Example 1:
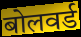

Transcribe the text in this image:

बोलवर्ड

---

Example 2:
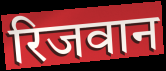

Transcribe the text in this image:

रिजवान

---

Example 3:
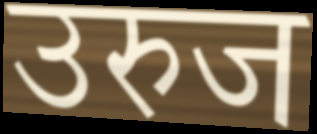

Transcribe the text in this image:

उरुज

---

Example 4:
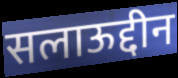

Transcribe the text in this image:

सलाऊद्दीन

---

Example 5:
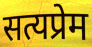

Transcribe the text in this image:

सत्यप्रेम